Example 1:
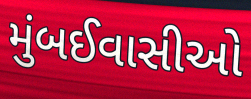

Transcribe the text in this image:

મુંબઈવાસીઓ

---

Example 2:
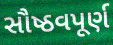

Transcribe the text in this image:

સૌષ્ઠવપૂર્ણ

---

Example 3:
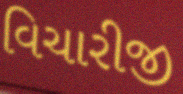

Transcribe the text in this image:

વિચારીજી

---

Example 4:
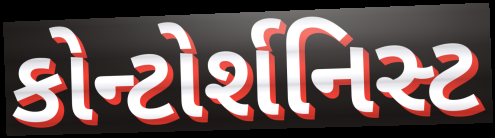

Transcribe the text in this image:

કોન્ટોર્શનિસ્ટ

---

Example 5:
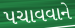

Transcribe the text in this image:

પચાવવાને